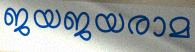
ജയജയരാമ